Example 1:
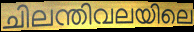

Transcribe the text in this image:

ചിലന്തിവലയിലെ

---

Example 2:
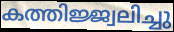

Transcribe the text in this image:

കത്തിജ്ജ്വലിച്ചു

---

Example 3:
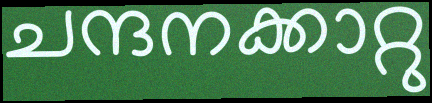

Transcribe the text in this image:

ചന്ദനക്കാറ്റു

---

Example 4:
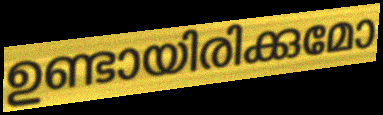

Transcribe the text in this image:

ഉണ്ടായിരിക്കുമോ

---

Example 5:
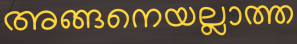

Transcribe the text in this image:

അങ്ങനെയല്ലാത്ത